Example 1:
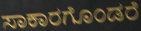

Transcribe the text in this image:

ಸಾಕಾರಗೊಂಡರೆ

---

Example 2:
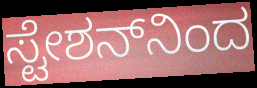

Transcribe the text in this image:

ಸ್ಟೇಶನ್‌ನಿಂದ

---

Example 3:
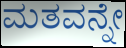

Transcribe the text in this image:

ಮತವನ್ನೇ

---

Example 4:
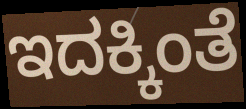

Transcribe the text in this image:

ಇದಕ್ಕಿಂತೆ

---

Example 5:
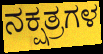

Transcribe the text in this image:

ನಕ್ಷತ್ರಗಳ